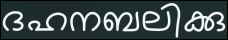
ദഹനബലിക്കു